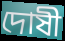
দোষী